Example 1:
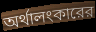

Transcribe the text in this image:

অর্থালংকারের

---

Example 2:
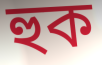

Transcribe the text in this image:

হুক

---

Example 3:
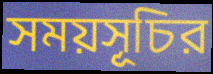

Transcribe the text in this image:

সময়সূচির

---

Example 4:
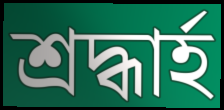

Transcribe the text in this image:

শ্রদ্ধার্হ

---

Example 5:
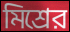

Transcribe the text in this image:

মিশ্রের